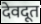
देवदूत